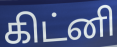
கிட்னி